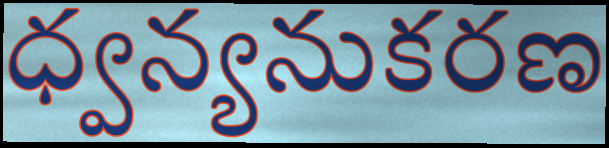
ధ్వన్యనుకరణ